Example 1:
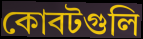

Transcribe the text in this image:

কোবটগুলি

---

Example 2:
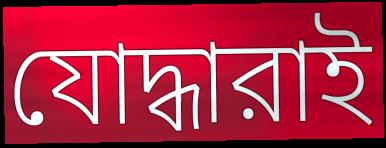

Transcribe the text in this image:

যোদ্ধারাই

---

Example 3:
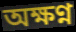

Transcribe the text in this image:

অক্ষণ্ন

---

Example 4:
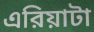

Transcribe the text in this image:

এরিয়াটা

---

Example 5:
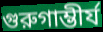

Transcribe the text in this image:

গুরুগাম্ভীর্য